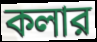
কলার